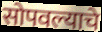
सोपवल्याचे